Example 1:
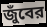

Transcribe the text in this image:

জুঁবের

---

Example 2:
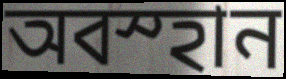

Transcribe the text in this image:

অবস্হান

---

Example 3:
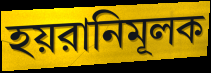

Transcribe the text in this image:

হয়রানিমূলক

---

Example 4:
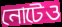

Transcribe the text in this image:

নোটেও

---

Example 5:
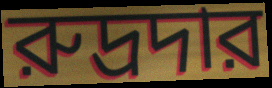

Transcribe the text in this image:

রুদ্রদার